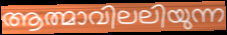
ആത്മാവിലലിയുന്ന